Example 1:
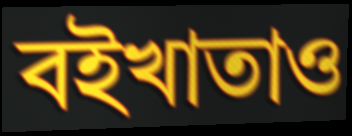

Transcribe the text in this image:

বইখাতাও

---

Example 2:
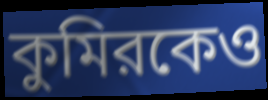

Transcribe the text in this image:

কুমিরকেও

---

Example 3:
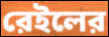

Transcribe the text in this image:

রেইলের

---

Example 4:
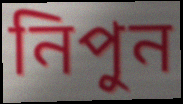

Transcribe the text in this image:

নিপুন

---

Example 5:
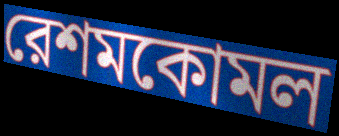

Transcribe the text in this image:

রেশমকোমল